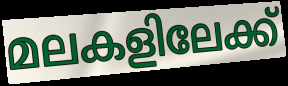
മലകളിലേക്ക്